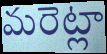
మరెట్లా